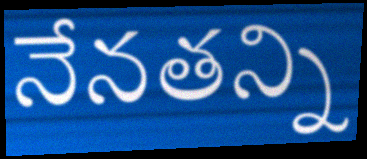
నేనతన్ని